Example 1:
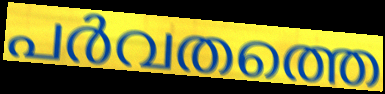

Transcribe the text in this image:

പർവതത്തെ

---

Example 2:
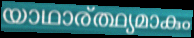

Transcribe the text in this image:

യാഥാര്ത്ഥ്യമാകും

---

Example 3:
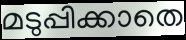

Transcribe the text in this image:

മടുപ്പിക്കാതെ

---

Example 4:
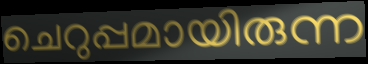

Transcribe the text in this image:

ചെറുപ്പമായിരുന്ന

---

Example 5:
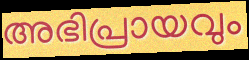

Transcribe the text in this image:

അഭിപ്രായവും